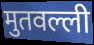
मुतवल्ली